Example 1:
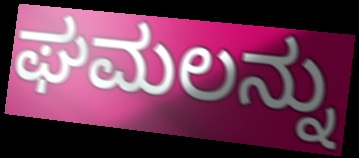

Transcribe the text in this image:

ಘಮಲನ್ನು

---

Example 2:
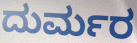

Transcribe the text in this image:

ದುರ್ಮರ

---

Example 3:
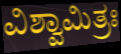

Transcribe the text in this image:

ವಿಶ್ವಾಮಿತ್ರಃ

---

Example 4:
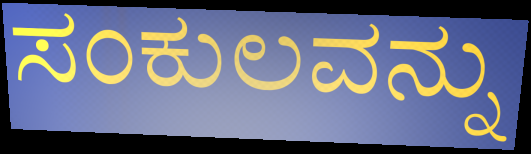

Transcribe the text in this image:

ಸಂಕುಲವನ್ನು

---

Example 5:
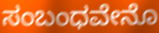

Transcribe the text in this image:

ಸಂಬಂಧವೇನೊ